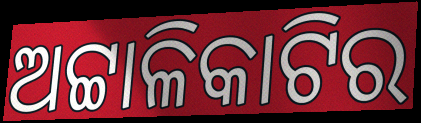
ଅଟ୍ଟାଳିକାଟିର